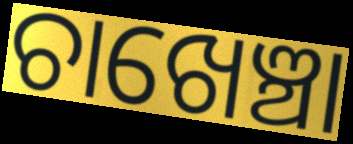
ଚାଖେଞ୍ଚା